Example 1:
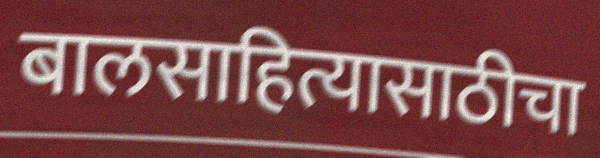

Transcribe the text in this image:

बालसाहित्यासाठीचा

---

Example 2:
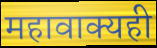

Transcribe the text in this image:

महावाक्यही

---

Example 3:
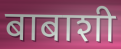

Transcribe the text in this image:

बाबाशी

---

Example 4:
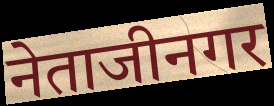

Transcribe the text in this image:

नेताजीनगर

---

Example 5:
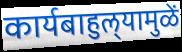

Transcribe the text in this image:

कार्यबाहुल्यामुळें